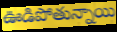
ఊడిపోతున్నాయి